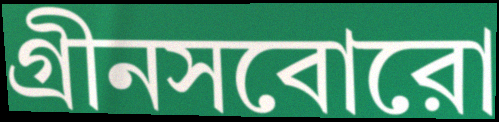
গ্রীনসবোরো